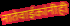
नातेवाईकांनीही